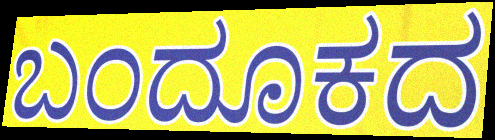
ಬಂದೂಕದ